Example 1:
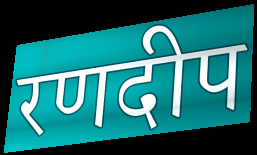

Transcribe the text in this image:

रणदीप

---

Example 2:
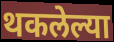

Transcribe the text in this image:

थकलेल्या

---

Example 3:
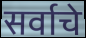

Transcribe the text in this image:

सर्वाचे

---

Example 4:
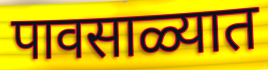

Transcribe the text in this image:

पावसाळ्यात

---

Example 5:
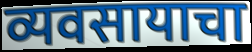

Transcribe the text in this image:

व्यवसायाचा